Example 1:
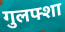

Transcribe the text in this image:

गुलफ्शा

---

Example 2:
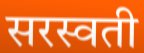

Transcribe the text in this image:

सरस्वती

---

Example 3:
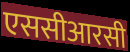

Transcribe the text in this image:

एससीआरसी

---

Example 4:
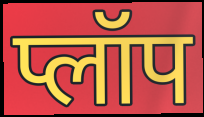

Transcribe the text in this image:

प्लॉप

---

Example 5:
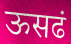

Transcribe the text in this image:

ऊसढं